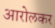
आरोलकर